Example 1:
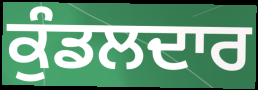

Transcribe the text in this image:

ਕੁੰਡਲਦਾਰ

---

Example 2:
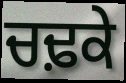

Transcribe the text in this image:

ਚਢ਼ਕੇ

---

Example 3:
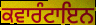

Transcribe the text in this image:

ਕਵਾਰੰਟਾਇਨ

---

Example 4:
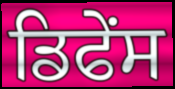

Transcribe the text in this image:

ਡਿਫੇਂਸ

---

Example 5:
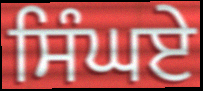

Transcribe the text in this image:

ਸਿੰਘਏ